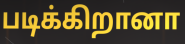
படிக்கிறானா